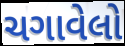
ચગાવેલો